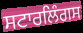
ਸਟਾਰਲਿੰਗਸ